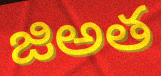
జిఅత